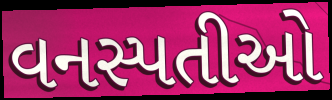
વનસ્પતીઓ